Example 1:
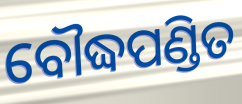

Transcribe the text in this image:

ବୌଦ୍ଧପଣ୍ଡିତ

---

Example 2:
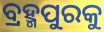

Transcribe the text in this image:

ବ୍ରହ୍ମପୁରକୁ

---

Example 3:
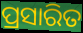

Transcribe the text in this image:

ପ୍ରସାରିତ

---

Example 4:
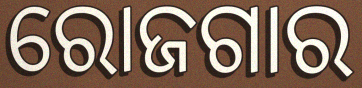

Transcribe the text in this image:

ରୋଜଗାର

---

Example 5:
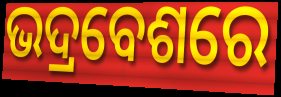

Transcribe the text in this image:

ଭଦ୍ରବେଶରେ